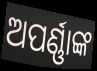
ଅପର୍ଣ୍ଣାଙ୍କ